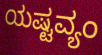
ಯಷ್ಟವ್ಯಂ